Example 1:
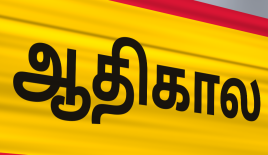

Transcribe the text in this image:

ஆதிகால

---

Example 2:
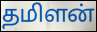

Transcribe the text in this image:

தமிளன்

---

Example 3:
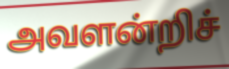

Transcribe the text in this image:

அவளன்றிச்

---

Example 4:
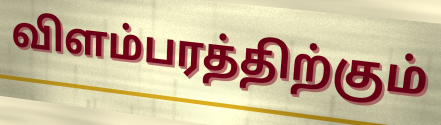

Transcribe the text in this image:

விளம்பரத்திற்கும்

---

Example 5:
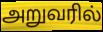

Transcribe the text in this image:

அறுவரில்